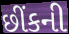
છીંકની